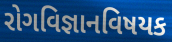
રોગવિજ્ઞાનવિષયક